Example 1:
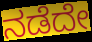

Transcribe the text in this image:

ನಡೆದೇ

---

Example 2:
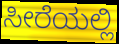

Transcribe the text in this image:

ಸೀರೆಯಲ್ಲಿ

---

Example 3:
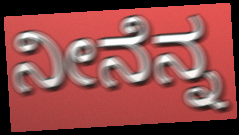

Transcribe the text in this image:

ನೀನೆನ್ನ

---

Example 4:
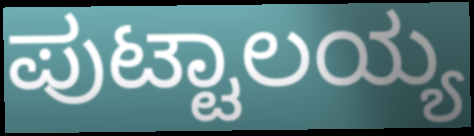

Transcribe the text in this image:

ಪುಟ್ಟಾಲಯ್ಯ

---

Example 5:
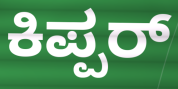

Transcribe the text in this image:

ಕಿಪ್ಪರ್